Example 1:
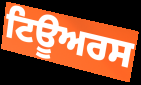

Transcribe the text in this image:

ਟਿਊਅਰਸ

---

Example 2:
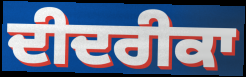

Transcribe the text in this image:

ਦੀਦਰੀਕਾ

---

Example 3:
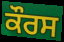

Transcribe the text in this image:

ਕੌਰਸ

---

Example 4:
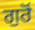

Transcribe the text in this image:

ਗੁਰੋਂ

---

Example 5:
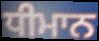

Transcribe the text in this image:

ਧੀਮਾਨ